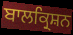
ਬਾਲਕ੍ਰਿਸ਼ਨ